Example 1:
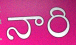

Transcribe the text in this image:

నారి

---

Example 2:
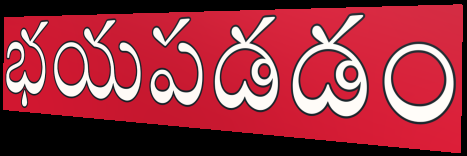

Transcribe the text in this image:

భయపడడం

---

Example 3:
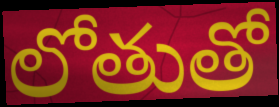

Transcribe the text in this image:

లోతుతో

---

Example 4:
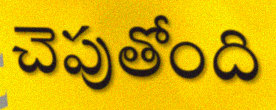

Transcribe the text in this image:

చెపుతోంది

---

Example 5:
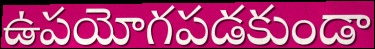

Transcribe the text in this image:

ఉపయోగపడకుండా